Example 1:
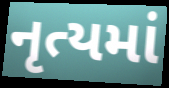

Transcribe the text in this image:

નૃત્યમાં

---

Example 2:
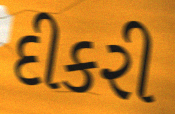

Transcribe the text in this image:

દીકરી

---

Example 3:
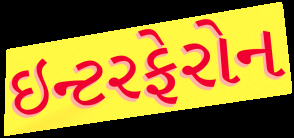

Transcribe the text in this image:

ઇન્ટરફેરોન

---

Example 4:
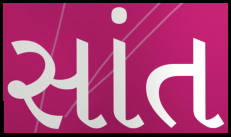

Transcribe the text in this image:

સાંત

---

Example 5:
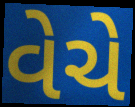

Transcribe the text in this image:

વેચે